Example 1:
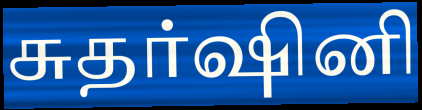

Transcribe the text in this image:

சுதர்ஷினி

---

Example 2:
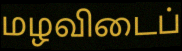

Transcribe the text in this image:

மழவிடைப்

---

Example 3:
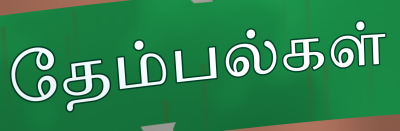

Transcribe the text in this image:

தேம்பல்கள்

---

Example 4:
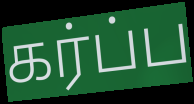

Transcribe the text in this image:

கர்ப்ப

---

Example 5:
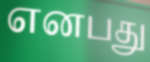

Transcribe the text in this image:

எனபது